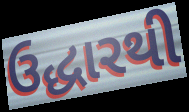
ઉદ્ધારથી